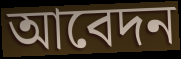
আবেদন